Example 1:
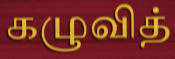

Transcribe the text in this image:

கழுவித்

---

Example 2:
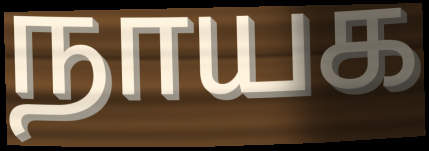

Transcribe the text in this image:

நாயக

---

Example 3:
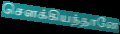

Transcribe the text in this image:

சௌக்கியந்தானே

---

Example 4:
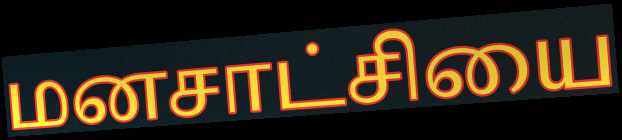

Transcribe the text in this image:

மனசாட்சியை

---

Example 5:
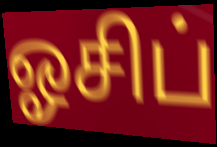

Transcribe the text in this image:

ஓசிப்